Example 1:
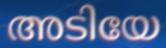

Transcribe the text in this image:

അടിയേ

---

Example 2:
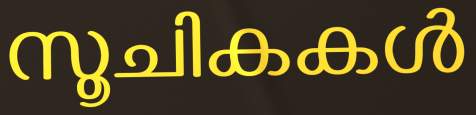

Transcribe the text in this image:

സൂചികകൾ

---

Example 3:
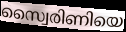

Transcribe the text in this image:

സ്വൈരിണിയെ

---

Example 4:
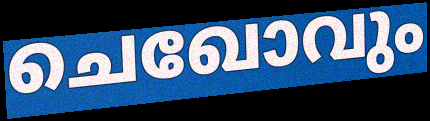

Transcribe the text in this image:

ചെഖോവും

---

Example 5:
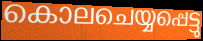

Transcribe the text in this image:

കൊലചെയ്യപ്പെട്ടു